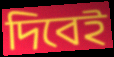
দিবেই